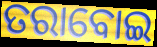
ତରାବୋଇ